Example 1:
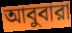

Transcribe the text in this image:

আবুবারা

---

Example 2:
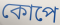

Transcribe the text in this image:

কোপে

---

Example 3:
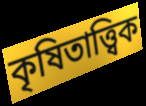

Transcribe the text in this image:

কৃষিতাত্ত্বিক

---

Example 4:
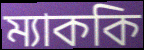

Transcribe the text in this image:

ম্যাককি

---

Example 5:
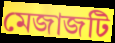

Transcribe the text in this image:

মেজাজটি